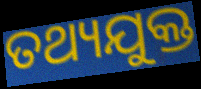
ତଥ୍ୟଯୁକ୍ତ